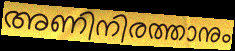
അണിനിരത്താനും